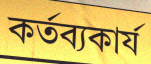
কর্তব্যকার্য